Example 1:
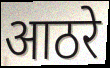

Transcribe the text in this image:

आठरे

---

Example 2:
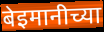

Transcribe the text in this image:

बेइमानीच्या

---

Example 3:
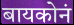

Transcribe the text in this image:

बायकोनं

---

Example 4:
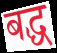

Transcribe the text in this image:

बद्ध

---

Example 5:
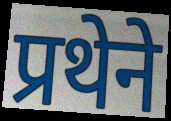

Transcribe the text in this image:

प्रथेने